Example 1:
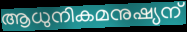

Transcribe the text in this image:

ആധുനികമനുഷ്യന്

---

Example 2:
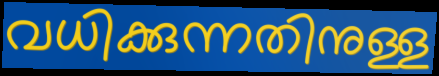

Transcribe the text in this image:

വധിക്കുന്നതിനുള്ള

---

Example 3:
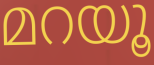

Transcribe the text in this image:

മറയൂ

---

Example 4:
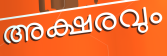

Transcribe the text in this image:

അക്ഷരവും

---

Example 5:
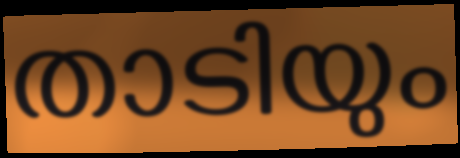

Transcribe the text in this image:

താടിയും